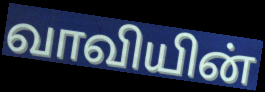
வாவியின்